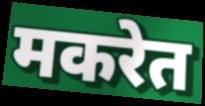
मकरेत